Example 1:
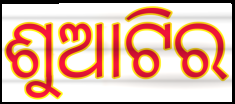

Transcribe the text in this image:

ଶୁଆଟିର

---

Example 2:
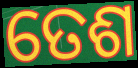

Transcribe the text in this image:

ତେଶ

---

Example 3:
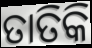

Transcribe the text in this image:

ତାତିକି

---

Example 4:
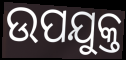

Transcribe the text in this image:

ଉପଯୁକ୍ତ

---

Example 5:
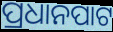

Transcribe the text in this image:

ପ୍ରଧାନପାଟ